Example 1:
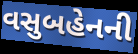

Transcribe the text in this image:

વસુબહેનની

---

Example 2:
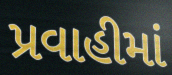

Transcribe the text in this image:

પ્રવાહીમાં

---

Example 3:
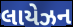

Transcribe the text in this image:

લાયેઝન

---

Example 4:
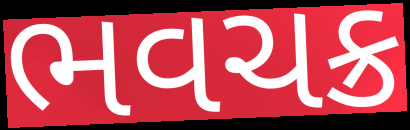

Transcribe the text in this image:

ભવચક્ર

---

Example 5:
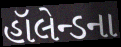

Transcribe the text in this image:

હૉલેન્ડના